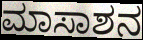
ಮಾಸಾಶನ